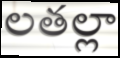
లతల్లా